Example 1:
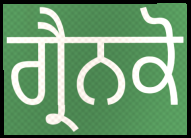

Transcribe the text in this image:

ਗ੍ਰੈਨਕੋ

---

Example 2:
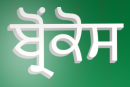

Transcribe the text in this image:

ਬ੍ਰੋਂਕੋਸ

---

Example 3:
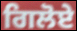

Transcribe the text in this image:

ਗਿਲੋਏ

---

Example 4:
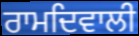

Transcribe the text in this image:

ਰਾਮਦਿਵਾਲੀ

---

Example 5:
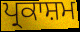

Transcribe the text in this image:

ਪ੍ਰਕਾਸ਼ਮ